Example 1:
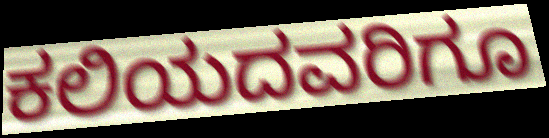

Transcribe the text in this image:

ಕಲಿಯದವರಿಗೂ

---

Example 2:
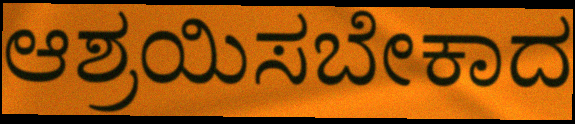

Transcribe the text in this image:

ಆಶ್ರಯಿಸಬೇಕಾದ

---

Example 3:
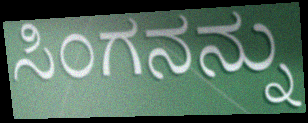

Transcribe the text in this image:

ಸಿಂಗನನ್ನು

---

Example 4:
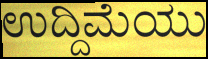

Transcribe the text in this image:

ಉದ್ದಿಮೆಯು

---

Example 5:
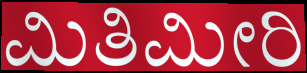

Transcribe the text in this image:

ಮಿತಿಮೀರಿ